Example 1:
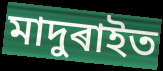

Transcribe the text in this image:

মাদুৰাইত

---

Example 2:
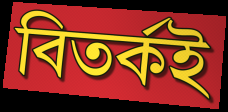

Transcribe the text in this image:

বিতৰ্কই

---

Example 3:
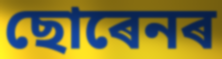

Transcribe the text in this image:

ছোৰেনৰ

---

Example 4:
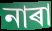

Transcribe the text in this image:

নাৰা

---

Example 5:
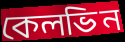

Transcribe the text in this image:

কেলভিন